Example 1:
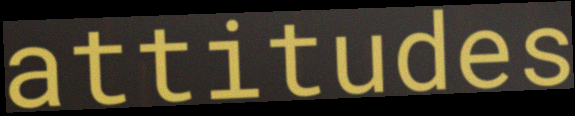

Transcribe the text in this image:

attitudes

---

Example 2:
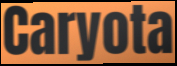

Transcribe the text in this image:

Caryota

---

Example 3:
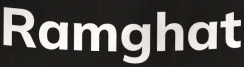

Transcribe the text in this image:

Ramghat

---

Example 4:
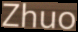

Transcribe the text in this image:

Zhuo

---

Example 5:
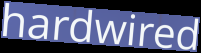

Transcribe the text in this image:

hardwired